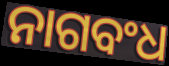
ନାଗବଂଧ